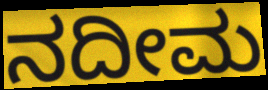
ನದೀಮ